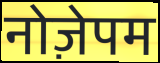
नोज़ेपम